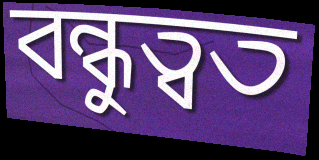
বন্ধুত্বত